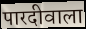
पारदीवाला